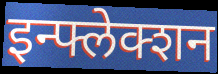
इन्फ्लेक्शन